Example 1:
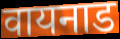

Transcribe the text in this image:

वायनाड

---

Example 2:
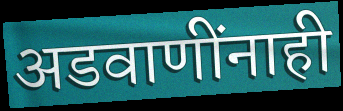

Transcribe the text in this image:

अडवाणींनाही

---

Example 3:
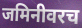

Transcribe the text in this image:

जमिनीवरच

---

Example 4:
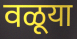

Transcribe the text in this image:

वळूया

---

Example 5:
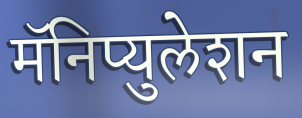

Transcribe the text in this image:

मॅनिप्युलेशन